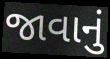
જાવાનું